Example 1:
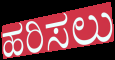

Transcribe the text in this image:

ಹರಿಸಲು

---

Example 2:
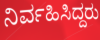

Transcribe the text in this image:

ನಿರ್ವಹಿಸಿದ್ದರು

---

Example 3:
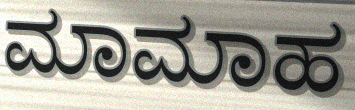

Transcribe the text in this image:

ಮಾಮಾಹ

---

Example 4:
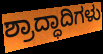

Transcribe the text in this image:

ಶ್ರಾದ್ಧಾದಿಗಳು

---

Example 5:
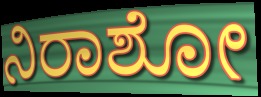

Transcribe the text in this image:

ನಿರಾಶೋ